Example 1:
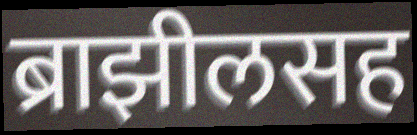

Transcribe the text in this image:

ब्राझीलसह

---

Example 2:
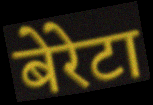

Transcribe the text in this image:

बेरेटा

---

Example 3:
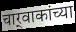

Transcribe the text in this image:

चार्वाकांच्या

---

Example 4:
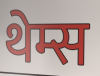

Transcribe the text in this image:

थेम्स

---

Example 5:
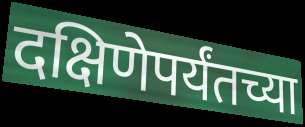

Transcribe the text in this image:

दक्षिणेपर्यंतच्या